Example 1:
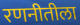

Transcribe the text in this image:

रणनीतीला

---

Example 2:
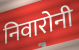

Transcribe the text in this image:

निवारोनी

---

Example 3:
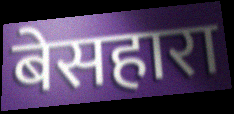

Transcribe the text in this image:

बेसहारा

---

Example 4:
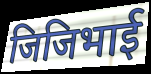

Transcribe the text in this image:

जिजिभाई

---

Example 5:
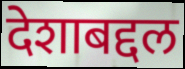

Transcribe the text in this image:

देशाबद्दल